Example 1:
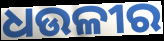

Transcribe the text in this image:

ଧଉଳୀର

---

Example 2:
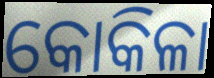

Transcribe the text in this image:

କୋକିଳା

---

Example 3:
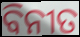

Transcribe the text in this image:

ବିନୀତ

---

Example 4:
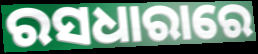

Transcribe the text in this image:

ରସଧାରାରେ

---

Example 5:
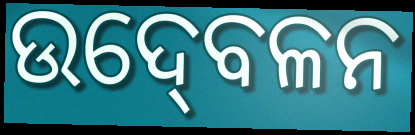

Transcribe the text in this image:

ଉଦ୍‍ବେଳନ